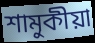
শামুকীয়া